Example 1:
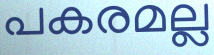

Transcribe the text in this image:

പകരമല്ല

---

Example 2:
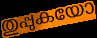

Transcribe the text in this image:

തുപ്പുകയോ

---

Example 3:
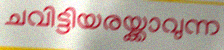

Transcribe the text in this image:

ചവിട്ടിയരയ്ക്കാവുന്ന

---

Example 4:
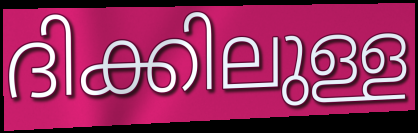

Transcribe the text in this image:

ദിക്കിലുള്ള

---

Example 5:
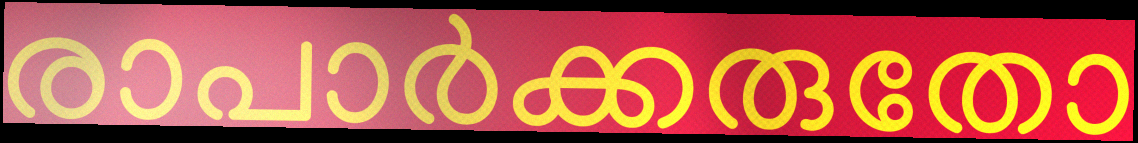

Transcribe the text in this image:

രാപാർക്കരുതോ